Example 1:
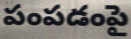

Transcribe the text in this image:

పంపడంపై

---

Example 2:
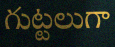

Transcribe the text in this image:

గుట్టలుగా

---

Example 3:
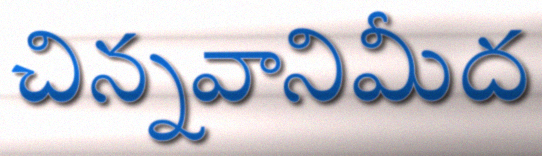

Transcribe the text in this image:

చిన్నవానిమీద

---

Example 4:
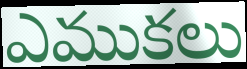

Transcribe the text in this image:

ఎముకలు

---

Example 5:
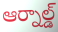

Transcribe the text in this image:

ఆర్నాల్డ్